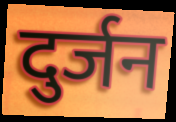
दुर्जन